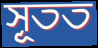
সূতত